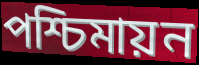
পশ্চিমায়ন